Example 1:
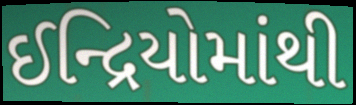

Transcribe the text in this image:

ઈન્દ્રિયોમાંથી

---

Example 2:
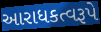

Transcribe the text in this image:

આરાધકત્વરૂપે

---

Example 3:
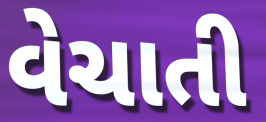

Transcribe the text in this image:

વેચાતી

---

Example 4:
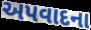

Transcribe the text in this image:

અપવાદના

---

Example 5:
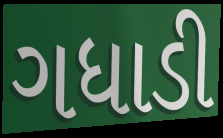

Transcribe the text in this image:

ગધાડી